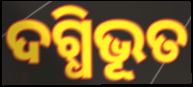
ଦଗ୍ଧିଭୂତ